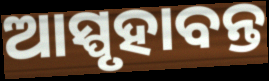
ଆସ୍ପୃହାବନ୍ତ